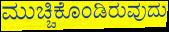
ಮುಚ್ಚಿಕೊಂಡಿರುವುದು